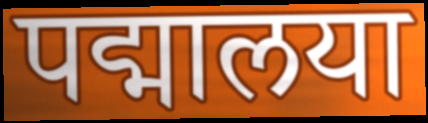
पद्मालया